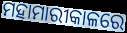
ମହାମାରୀକାଳରେ